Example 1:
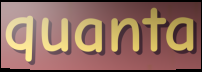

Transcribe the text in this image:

quanta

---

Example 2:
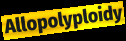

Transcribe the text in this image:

Allopolyploidy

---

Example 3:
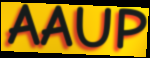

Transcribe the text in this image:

AAUP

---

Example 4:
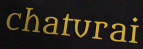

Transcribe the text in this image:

chaturai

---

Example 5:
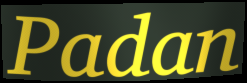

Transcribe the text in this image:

Padan